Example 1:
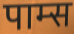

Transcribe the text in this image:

पाम्स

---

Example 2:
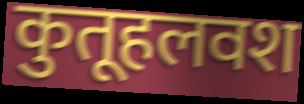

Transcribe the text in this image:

कुतूहलवश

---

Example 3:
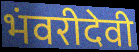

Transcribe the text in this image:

भंवरीदेवी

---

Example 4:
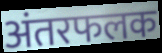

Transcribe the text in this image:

अंतरफलक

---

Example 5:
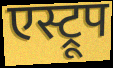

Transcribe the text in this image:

एस्ट्रूप